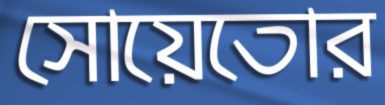
সোয়েতোর